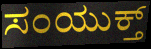
ಸಂಯುಕ್ತ್